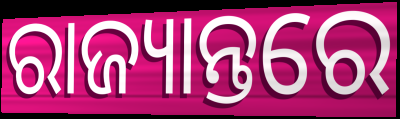
ରାଜ୍ୟାନ୍ତରେ